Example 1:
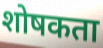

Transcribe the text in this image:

शोषकता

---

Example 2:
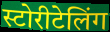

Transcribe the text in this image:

स्टोरीटेलिंग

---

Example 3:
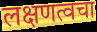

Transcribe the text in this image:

लक्षणत्वचा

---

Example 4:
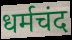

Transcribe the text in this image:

धर्मचंद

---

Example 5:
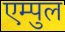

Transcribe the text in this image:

एम्पुल